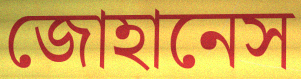
জোহানেস